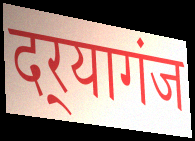
दर्यागंज